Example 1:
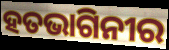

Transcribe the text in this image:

ହତଭାଗିନୀର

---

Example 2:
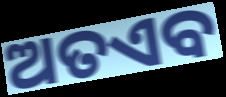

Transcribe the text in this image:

ଅତଏବ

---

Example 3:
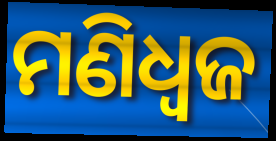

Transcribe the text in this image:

ମଣିଧ୍ୱଜ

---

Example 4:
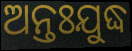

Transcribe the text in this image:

ଅନ୍ତଃଯୁଦ୍ଧ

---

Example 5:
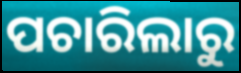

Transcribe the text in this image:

ପଚାରିଲାରୁ